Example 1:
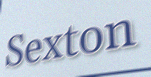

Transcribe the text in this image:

Sexton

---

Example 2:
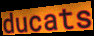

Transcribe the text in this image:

ducats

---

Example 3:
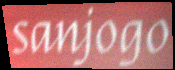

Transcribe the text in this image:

sanjogo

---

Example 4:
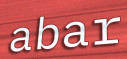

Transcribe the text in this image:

abar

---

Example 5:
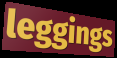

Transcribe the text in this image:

leggings